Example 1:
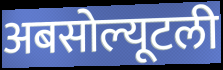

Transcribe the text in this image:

अबसोल्यूटली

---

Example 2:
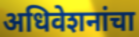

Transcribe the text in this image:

अधिवेशनांचा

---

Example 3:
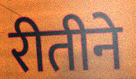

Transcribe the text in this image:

रीतीने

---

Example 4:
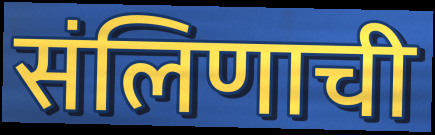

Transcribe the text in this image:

संलिणाची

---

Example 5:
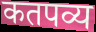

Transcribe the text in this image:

कतपव्य